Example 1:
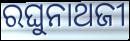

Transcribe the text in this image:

ରଘୁନାଥଜୀ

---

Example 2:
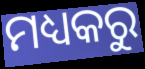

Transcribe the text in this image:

ମଧ୍ୟକରୁ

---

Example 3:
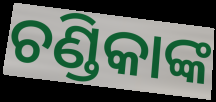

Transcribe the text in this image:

ଚଣ୍ଡିକାଙ୍କ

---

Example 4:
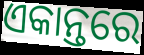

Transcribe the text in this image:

ଏକାନ୍ତରେ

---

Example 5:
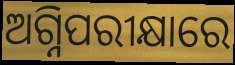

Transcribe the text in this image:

ଅଗ୍ନିପରୀକ୍ଷାରେ